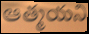
ఆత్మయని